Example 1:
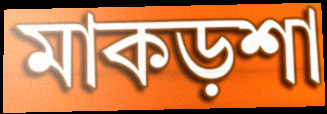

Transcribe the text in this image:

মাকড়শা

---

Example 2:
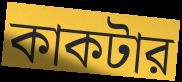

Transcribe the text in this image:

কাকটার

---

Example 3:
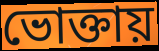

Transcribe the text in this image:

ভোক্তায়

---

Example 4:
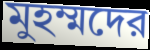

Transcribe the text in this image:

মুহম্মদের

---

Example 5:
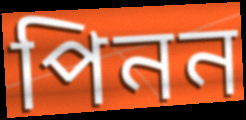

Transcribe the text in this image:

পিনন